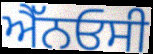
ਐੱਨਓਸੀ